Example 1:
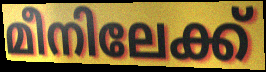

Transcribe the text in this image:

മീനിലേക്ക്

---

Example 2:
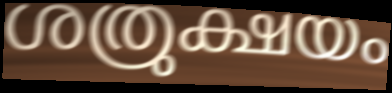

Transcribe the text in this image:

ശത്രുക്ഷയം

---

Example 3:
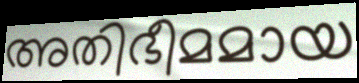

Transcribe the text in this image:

അതിഭീമമായ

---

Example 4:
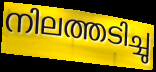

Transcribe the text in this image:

നിലത്തടിച്ചു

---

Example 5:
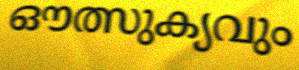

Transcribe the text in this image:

ഔത്സുക്യവും